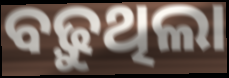
ବଢ଼ୁଥିଲା